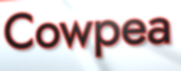
Cowpea